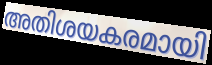
അതിശയകരമായി